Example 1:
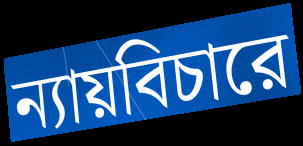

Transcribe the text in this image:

ন্যায়বিচারে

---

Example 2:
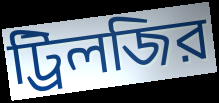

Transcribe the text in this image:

ট্রিলজির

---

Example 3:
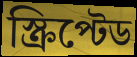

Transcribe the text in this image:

স্ক্রিপ্টেড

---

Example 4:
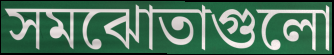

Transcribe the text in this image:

সমঝোতাগুলো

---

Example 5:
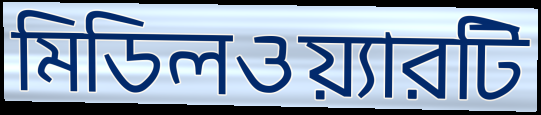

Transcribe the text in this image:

মিডিলওয়্যারটি